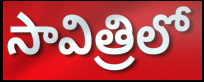
సావిత్రిలో